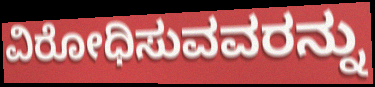
ವಿರೋಧಿಸುವವರನ್ನು